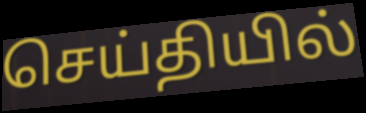
செய்தியில்